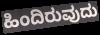
ಹಿಂದಿರುವುದು